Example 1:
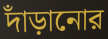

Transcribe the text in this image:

দাঁড়ানোর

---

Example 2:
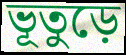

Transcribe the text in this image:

ভূতুড়ে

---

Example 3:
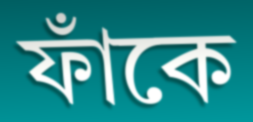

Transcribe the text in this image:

ফাঁকে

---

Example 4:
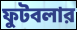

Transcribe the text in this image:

ফুটবলার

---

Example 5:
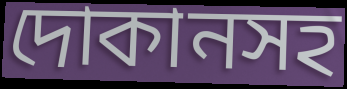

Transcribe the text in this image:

দোকানসহ